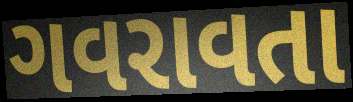
ગવરાવતા